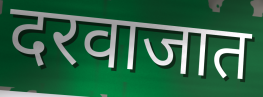
दरवाजात